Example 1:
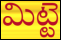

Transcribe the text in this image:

మిట్టె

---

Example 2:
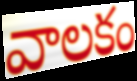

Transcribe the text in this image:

వాలకం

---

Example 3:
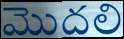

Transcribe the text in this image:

మొదలి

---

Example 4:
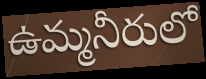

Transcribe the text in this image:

ఉమ్మనీరులో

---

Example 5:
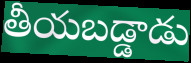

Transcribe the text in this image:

తీయబడ్డాడు